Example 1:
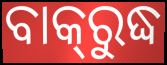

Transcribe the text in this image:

ବାକ୍‌ରୁଦ୍ଧ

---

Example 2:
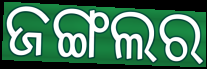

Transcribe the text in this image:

ଜଙ୍ଗଲର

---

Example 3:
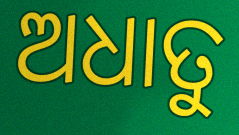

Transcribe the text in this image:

ଅଧାତୁ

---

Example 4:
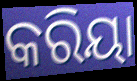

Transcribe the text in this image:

କରିୟା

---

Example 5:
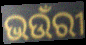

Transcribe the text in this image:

ଭଉଁରୀ